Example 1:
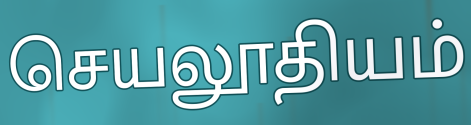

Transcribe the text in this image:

செயலூதியம்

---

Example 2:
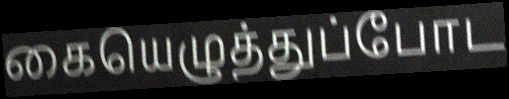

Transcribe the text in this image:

கையெழுத்துப்போட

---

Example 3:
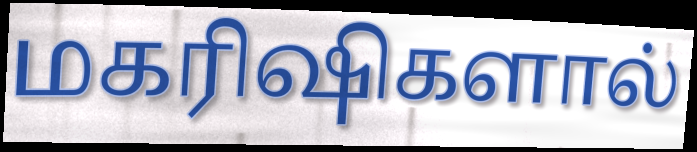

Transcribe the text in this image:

மகரிஷிகளால்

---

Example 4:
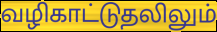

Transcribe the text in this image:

வழிகாட்டுதலிலும்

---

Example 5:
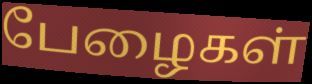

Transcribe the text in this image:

பேழைகள்